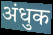
अंधुक